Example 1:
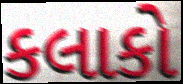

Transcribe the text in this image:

કલાકો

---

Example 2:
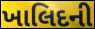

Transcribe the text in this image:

ખાલિદની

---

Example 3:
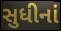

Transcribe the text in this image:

સુધીનાં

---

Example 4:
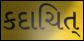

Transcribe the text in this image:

કદાચિત્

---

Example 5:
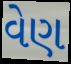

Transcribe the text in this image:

વેણ